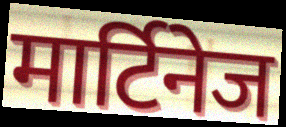
मार्टिनेज